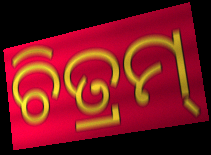
ଚିତ୍ରମ୍